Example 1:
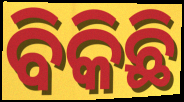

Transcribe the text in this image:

ବିକିଛି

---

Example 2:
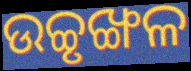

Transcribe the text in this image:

ଉଚ୍ଚୃଙ୍ଖଳ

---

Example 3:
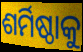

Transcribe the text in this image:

ଶର୍ମିଷ୍ଠାକୁ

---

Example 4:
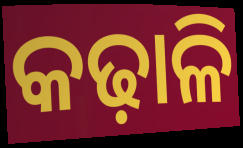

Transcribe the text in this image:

କଢ଼ାଳି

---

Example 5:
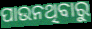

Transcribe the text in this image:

ପାଉନଥିବାରୁ